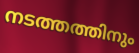
നടത്തത്തിനും